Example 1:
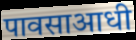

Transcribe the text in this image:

पावसाआधी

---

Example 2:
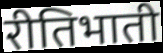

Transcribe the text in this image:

रीतिभाती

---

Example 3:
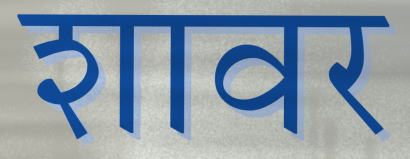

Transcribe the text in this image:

शावर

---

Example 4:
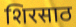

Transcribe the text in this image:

शिरसाठ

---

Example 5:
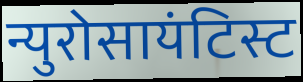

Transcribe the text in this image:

न्युरोसायंटिस्ट